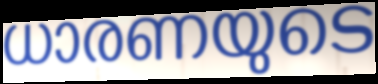
ധാരണയുടെ